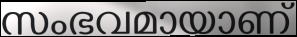
സംഭവമായാണ്